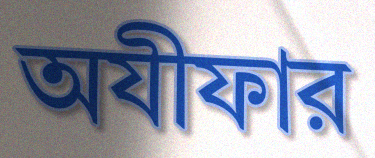
অযীফার